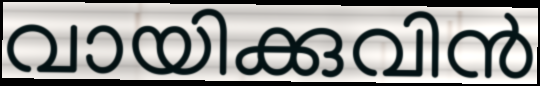
വായിക്കുവിൻ